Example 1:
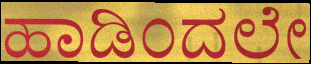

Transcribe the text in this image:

ಹಾಡಿಂದಲೇ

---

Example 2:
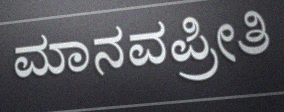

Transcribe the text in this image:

ಮಾನವಪ್ರೀತಿ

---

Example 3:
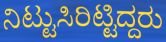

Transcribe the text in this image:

ನಿಟ್ಟುಸಿರಿಟ್ಟಿದ್ದರು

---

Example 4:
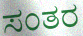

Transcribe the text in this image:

ಸಂತರ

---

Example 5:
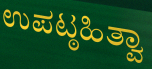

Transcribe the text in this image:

ಉಪಟ್ಠಹಿತ್ವಾ